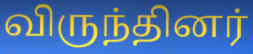
விருந்தினர்